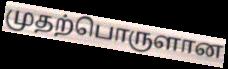
முதற்பொருளான